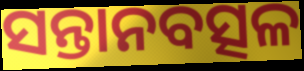
ସନ୍ତାନବତ୍ସଳ